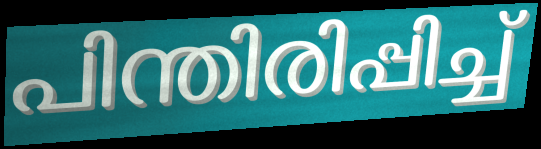
പിന്തിരിപ്പിച്ച്